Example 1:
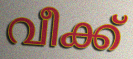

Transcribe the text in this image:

വീക്ക്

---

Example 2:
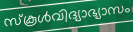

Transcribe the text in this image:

സ്കൂൾവിദ്യാഭ്യാസം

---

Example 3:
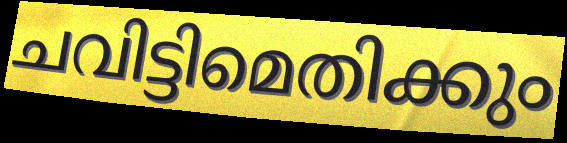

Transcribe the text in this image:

ചവിട്ടിമെതിക്കും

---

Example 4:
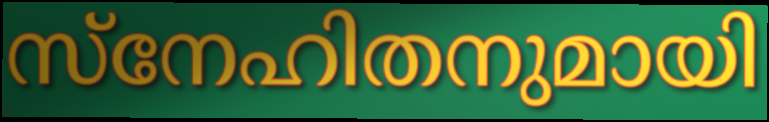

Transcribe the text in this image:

സ്നേഹിതനുമായി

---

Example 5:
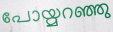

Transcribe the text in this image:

പോയ്മറഞ്ഞു